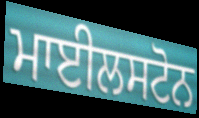
ਮਾਈਲਸਟੋਨ